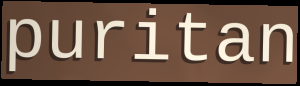
puritan